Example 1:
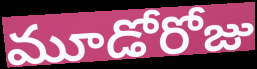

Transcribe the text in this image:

మూడోరోజు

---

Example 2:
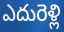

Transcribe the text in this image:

ఎదురెళ్లి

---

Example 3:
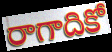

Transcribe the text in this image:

రాగాదికో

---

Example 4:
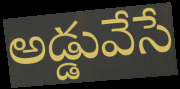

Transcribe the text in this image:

అడ్డువేసే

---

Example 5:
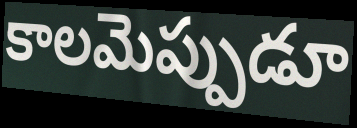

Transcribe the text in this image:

కాలమెప్పుడూ